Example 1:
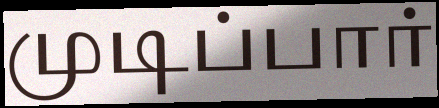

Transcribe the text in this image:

முடிப்பார்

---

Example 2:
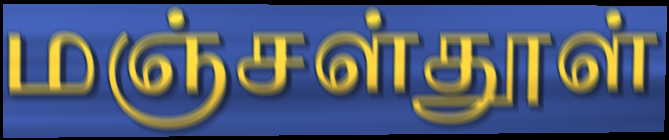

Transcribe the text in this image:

மஞ்சள்தூள்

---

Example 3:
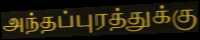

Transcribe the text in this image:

அந்தப்புரத்துக்கு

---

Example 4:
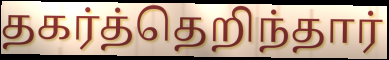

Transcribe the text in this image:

தகர்த்தெறிந்தார்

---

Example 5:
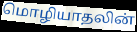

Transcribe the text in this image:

மொழியாதலின்